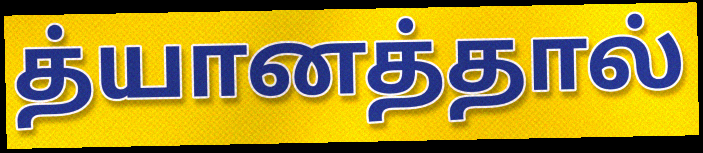
த்யானத்தால்